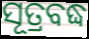
ସୂତ୍ରବଦ୍ଧ